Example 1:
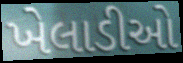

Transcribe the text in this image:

ખેલાડીઓ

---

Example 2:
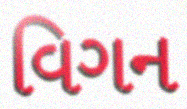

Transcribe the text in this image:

વિગન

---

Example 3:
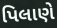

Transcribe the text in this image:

પિલાણે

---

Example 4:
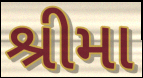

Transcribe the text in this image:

શ્રીમા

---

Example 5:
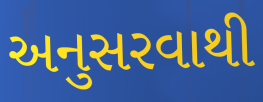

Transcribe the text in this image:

અનુસરવાથી